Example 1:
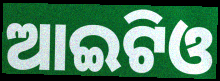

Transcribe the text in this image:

ଆଇଟିଓ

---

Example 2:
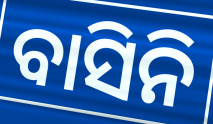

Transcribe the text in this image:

ବାସିନି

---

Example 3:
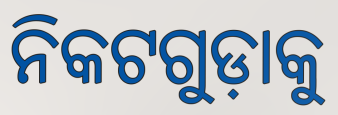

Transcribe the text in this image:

ନିକଟଗୁଡ଼ାକୁ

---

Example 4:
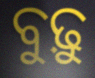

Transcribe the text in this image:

ବୁଢ଼ୁ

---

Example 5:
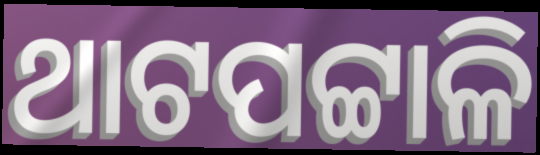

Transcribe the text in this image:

ଥାଟପଟ୍ଟାଳି